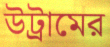
উট্রামের